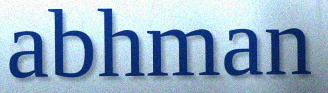
abhman